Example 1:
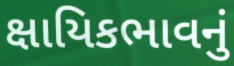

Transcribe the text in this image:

ક્ષાયિકભાવનું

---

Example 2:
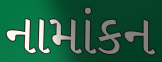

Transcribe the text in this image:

નામાંકન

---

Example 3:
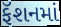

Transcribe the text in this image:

ફૅશનમાં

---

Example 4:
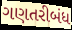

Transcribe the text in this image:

ગણતરીબંધ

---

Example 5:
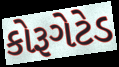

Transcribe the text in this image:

કોરૂગેટેડ